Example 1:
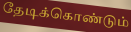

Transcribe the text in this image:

தேடிக்கொண்டும்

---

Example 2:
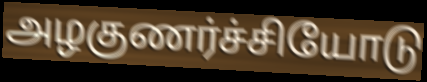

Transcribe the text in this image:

அழகுணர்ச்சியோடு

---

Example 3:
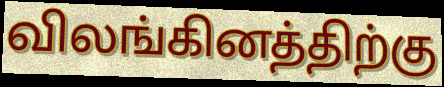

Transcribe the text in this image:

விலங்கினத்திற்கு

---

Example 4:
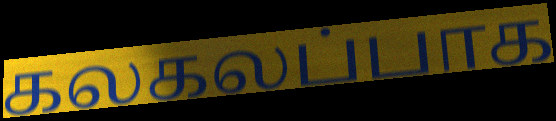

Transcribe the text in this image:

கலகலப்பாக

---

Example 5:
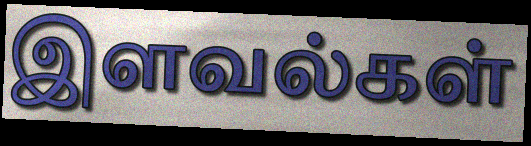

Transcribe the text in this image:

இளவல்கள்